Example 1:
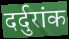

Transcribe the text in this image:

दर्दुरांक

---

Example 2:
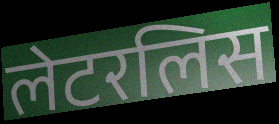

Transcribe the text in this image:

लेटरलिस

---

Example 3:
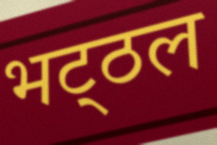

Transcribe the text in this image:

भट्‌ठल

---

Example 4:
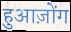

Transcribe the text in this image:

हुआज़ोंग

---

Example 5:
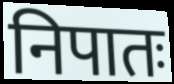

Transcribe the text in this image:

निपातः